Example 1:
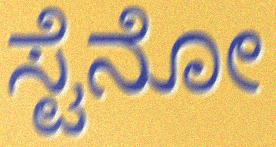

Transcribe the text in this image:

ಸ್ಟೆನೋ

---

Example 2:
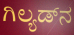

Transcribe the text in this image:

ಗಿಲ್ಯಡ್‌ನ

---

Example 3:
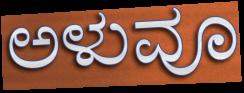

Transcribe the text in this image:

ಅಳುವೂ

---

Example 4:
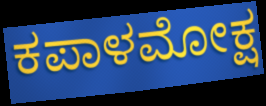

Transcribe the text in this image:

ಕಪಾಳಮೋಕ್ಷ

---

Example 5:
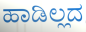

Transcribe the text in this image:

ಹಾಡಿಲ್ಲದ